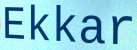
Ekkar